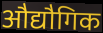
औद्यौगिक